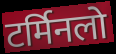
टर्मिनलो